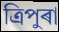
ত্ৰিপুৰা